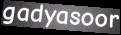
gadyasoor